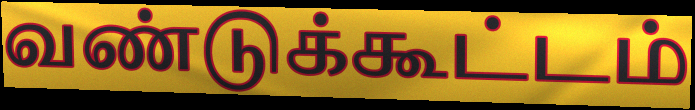
வண்டுக்கூட்டம்